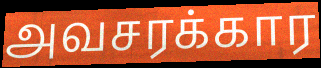
அவசரக்கார